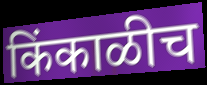
किंकाळीच